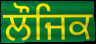
ਲੌਜਿਕ